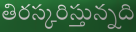
తిరస్కరిస్తున్నది